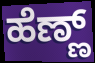
ಹೆಣ್ಣ್